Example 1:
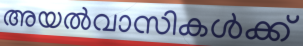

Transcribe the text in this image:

അയൽവാസികൾക്ക്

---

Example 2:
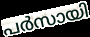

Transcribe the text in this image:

പർസായി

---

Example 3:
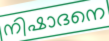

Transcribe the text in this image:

നിഷാദനെ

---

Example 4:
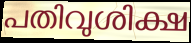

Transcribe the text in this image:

പതിവുശിക്ഷ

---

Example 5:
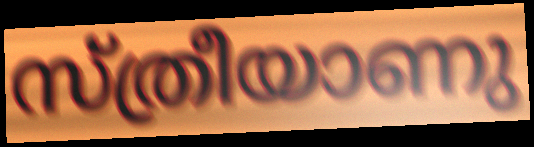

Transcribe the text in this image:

സ്ത്രീയാണു